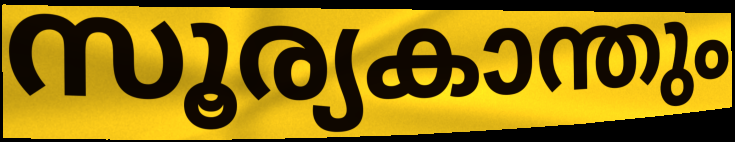
സൂര്യകാന്തും